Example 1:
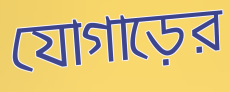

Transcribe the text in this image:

যোগাড়ের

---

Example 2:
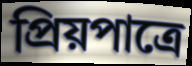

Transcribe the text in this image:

প্রিয়পাত্রে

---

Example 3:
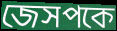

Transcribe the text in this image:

জেসপকে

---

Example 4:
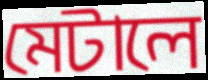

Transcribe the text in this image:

মেটালে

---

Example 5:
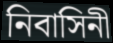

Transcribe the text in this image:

নিবাসিনী